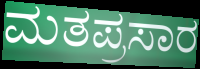
ಮತಪ್ರಸಾರ